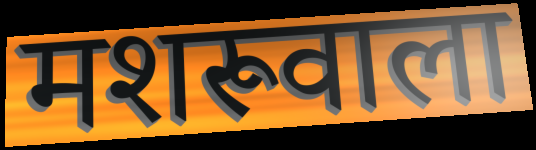
मशरूवाला